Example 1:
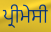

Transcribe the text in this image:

ਪ੍ਰੀਮੇਸੀ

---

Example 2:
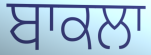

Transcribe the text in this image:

ਬਾਕਲਾ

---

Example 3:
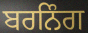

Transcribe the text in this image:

ਬਰਨਿੰਗ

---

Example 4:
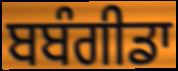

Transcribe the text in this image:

ਬਬੰਗੀਡਾ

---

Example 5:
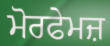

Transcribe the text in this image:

ਮੋਰਫੇਮਜ਼